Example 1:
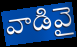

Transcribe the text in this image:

వాడివై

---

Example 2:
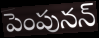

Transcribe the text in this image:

పెంపునన్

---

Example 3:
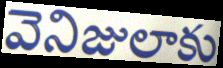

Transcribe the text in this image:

వెనిజులాకు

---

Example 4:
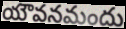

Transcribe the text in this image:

యౌవనమందు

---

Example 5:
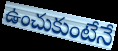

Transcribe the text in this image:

ఉంచుకుంటేనే